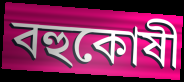
বহুকোষী